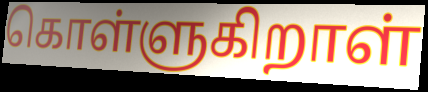
கொள்ளுகிறாள்